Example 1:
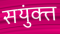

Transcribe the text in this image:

सयुंक्त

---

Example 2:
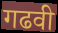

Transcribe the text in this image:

गढवी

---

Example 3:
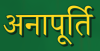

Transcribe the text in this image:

अनापूर्ति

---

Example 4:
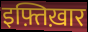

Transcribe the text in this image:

इफ़्तिख़ार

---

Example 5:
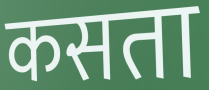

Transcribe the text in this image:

कसता